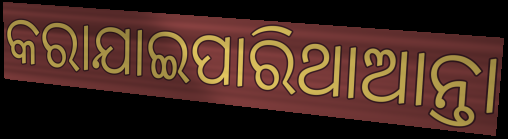
କରାଯାଇପାରିଥାଆନ୍ତା